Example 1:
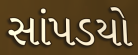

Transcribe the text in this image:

સાંપડયો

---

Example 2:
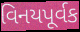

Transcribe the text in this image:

વિનયપૂર્વક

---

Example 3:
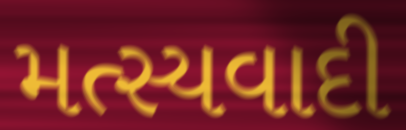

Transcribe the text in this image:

મત્સ્યવાદી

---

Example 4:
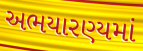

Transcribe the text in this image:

અભયારણ્યમાં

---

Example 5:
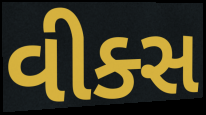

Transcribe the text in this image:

વીક્સ